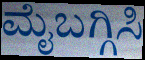
ಮೈಬಗ್ಗಿಸಿ